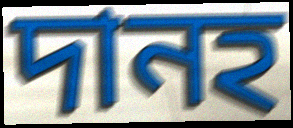
দানহ